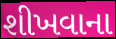
શીખવાના